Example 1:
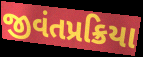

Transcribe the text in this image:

જીવંતપ્રક્રિયા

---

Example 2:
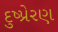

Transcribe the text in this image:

દુષ્પ્રેરણ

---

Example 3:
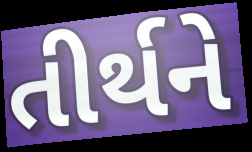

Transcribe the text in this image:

તીર્થને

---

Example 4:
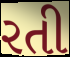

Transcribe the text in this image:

રતી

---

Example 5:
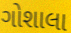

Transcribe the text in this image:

ગોશાલા